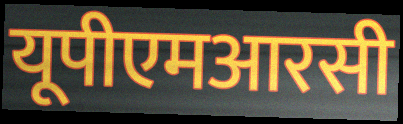
यूपीएमआरसी